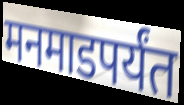
मनमाडपर्यंत